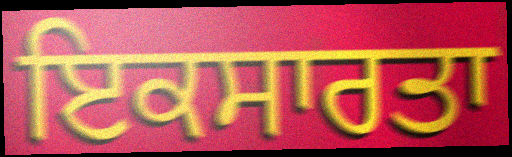
ਇਕਸਾਰਤਾ